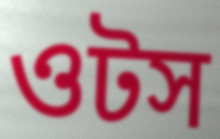
ওটস